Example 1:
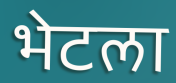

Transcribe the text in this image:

भेटला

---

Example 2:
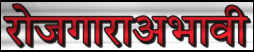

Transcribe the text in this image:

रोजगाराअभावी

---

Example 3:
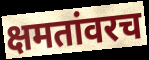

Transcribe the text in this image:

क्षमतांवरच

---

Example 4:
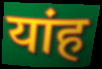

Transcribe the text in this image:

यांह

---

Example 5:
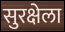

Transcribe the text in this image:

सुरक्षेला